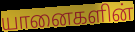
யானைகளின்